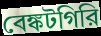
বেঙ্কটগিরি